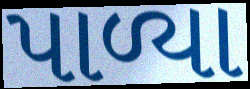
પાળ્યા